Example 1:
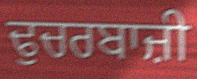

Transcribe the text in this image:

ਢੁਚਰਬਾਜ਼ੀ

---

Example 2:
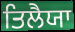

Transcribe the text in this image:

ਤਿਲੈਯਾ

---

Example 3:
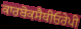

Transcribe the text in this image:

ਕਾਰਬੋਕਸੈਥੀਓਰੇਪੀ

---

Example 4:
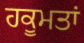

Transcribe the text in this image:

ਹਕੂਮਤਾਂ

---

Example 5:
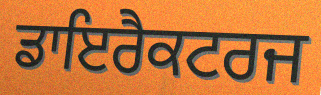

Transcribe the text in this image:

ਡਾਇਰੈਕਟਰਜ